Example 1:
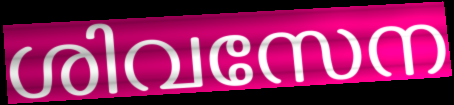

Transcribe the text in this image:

ശിവസേന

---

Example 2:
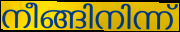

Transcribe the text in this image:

നീങ്ങിനിന്ന്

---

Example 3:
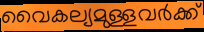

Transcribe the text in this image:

വൈകല്യമുള്ളവർക്ക്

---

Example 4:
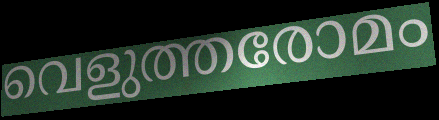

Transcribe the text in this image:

വെളുത്തരോമം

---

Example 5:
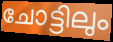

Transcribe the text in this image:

ചോട്ടിലും